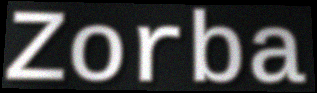
Zorba